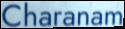
Charanam